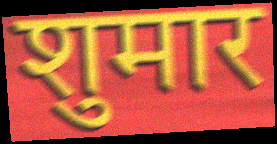
शुमार